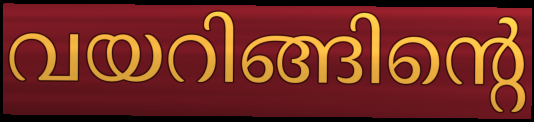
വയറിങ്ങിന്റെ